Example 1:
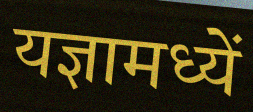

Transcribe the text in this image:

यज्ञामध्यें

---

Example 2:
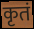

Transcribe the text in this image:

कृतं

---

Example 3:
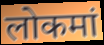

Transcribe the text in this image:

लोकमां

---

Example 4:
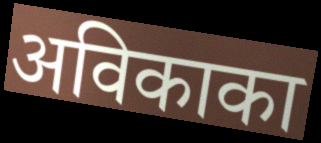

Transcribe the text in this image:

अविकाका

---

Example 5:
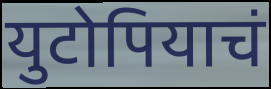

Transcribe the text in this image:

युटोपियाचं